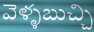
వెళ్ళబుచ్చి